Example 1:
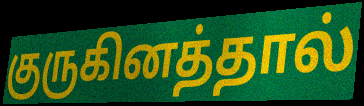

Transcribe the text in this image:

குருகினத்தால்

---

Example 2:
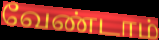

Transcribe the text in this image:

வேண்டாம்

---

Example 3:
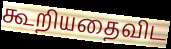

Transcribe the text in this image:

கூறியதைவிட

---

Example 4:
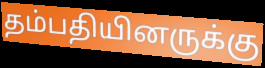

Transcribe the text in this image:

தம்பதியினருக்கு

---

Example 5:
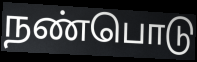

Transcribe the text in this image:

நண்பொடு